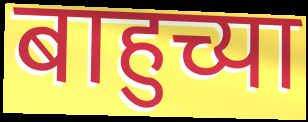
बाहुच्या